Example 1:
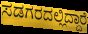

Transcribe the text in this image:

ಸಡಗರದಲ್ಲಿದ್ದಾರೆ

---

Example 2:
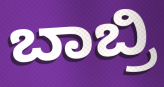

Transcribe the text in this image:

ಬಾಬ್ರಿ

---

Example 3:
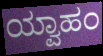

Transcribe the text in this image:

ಯ್ವಾಹಂ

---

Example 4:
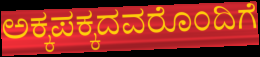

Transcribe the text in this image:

ಅಕ್ಕಪಕ್ಕದವರೊಂದಿಗೆ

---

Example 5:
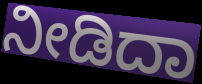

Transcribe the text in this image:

ನೀಡಿದಾ